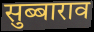
सुब्‍बाराव